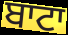
ਬਾਟਾ